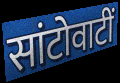
सांटोवाटीं